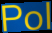
Pol